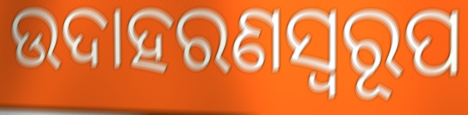
ଉଦାହରଣସ୍ୱରୂପ